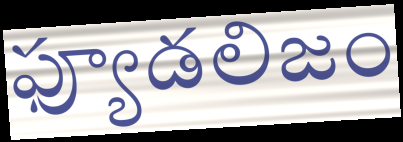
ఫ్యూడలిజం